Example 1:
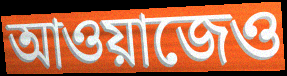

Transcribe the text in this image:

আওয়াজেও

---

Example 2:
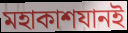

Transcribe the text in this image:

মহাকাশযানই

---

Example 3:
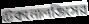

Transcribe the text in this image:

টেকনোলজিসের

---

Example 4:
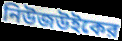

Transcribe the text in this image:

নিউজউইকের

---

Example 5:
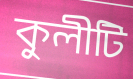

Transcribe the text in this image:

কুলীটি